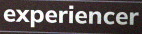
experiencer